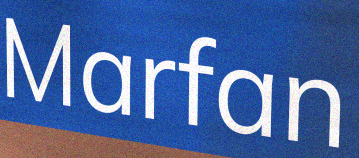
Marfan